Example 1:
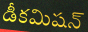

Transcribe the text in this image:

డీకమిషన్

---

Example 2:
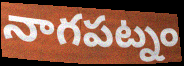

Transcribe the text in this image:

నాగపట్నం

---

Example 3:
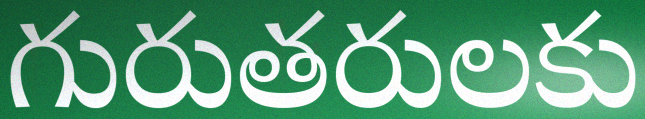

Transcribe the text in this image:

గురుతరులకు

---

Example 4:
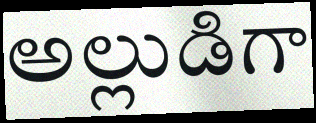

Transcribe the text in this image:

అల్లుడిగా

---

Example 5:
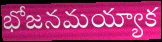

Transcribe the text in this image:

భోజనమయ్యాక